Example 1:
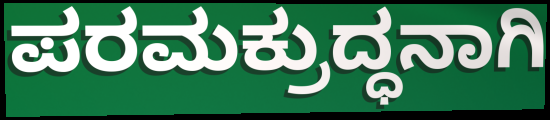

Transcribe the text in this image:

ಪರಮಕ್ರುದ್ಧನಾಗಿ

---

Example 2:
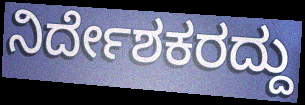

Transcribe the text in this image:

ನಿರ್ದೇಶಕರದ್ದು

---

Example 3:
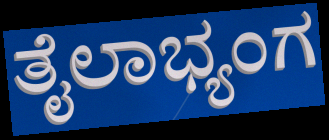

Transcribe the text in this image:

ತೈಲಾಭ್ಯಂಗ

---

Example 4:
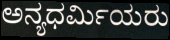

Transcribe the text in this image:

ಅನ್ಯಧರ್ಮಿಯರು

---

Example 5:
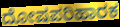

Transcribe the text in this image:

ದೋಷಪರಿಹಾರಕ